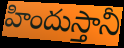
హిందుస్తానీ